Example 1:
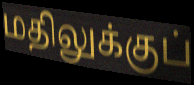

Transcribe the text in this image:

மதிலுக்குப்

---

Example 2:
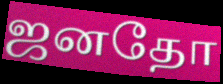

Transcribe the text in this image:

ஜனதோ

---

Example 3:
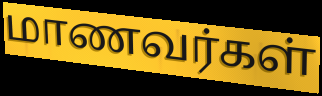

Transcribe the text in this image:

மாணவர்கள்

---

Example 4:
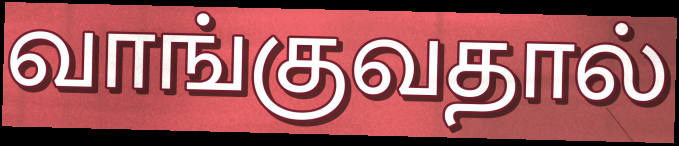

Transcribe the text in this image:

வாங்குவதால்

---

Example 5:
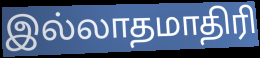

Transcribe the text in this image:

இல்லாதமாதிரி